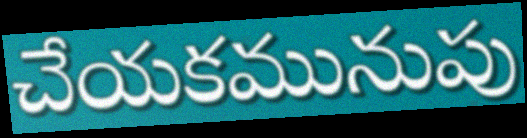
చేయకమునుపు